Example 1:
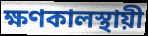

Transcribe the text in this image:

ক্ষণকালস্থায়ী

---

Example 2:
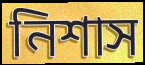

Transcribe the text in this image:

নিশাস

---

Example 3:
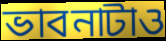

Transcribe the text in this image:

ভাবনাটাও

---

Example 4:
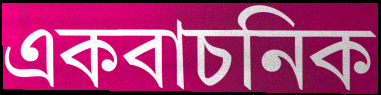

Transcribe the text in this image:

একবাচনিক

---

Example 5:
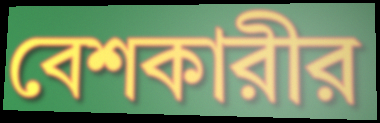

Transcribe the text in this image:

বেশকারীর